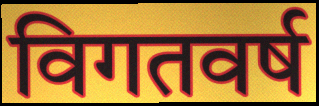
विगतवर्ष